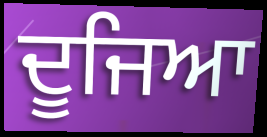
ਦੂਜਿਆ